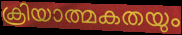
ക്രിയാത്മകതയും